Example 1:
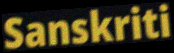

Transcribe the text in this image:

Sanskriti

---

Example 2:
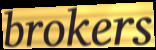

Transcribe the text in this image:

brokers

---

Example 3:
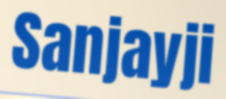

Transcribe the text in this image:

Sanjayji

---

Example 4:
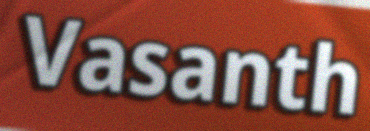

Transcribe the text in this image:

Vasanth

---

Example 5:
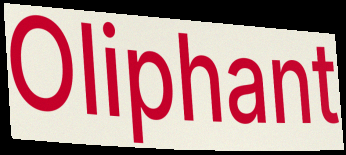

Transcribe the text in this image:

Oliphant